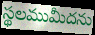
స్థలముమీదను